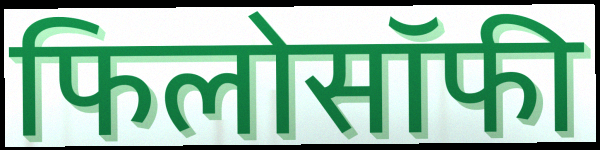
फिलोसॉफी